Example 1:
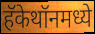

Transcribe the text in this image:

हॅकेथॉनमध्ये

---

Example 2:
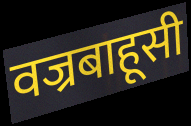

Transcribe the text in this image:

वज्रबाहूसी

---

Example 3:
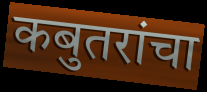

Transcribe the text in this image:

कबुतरांचा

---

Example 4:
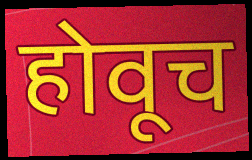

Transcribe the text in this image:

होवूच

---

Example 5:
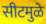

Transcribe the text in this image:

सीटमुळे